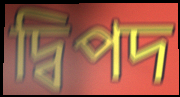
দ্বিপদ